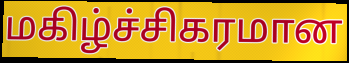
மகிழ்ச்சிகரமான